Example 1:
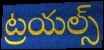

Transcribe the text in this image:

ట్రయల్స్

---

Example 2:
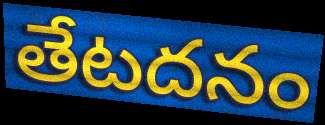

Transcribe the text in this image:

తేటదనం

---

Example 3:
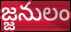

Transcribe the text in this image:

జ్జనులం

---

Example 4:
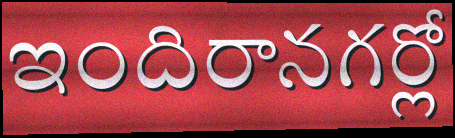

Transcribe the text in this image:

ఇందిరానగర్లో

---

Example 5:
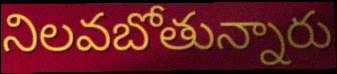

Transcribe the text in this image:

నిలవబోతున్నారు